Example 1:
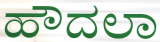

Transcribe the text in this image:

ಹೌದಲಾ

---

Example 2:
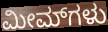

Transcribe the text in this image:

ಮೀಮ್‌ಗಳು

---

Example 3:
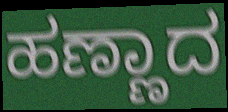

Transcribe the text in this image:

ಹಣ್ಣಾದ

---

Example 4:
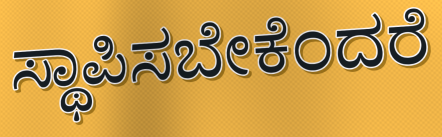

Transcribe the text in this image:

ಸ್ಥಾಪಿಸಬೇಕೆಂದರೆ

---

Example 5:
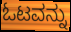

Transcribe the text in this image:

ಓಟವನ್ನು